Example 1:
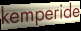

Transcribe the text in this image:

kemperide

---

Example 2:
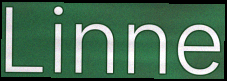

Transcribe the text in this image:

Linne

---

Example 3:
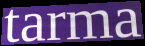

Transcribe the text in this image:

tarma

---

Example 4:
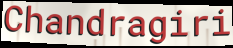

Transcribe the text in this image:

Chandragiri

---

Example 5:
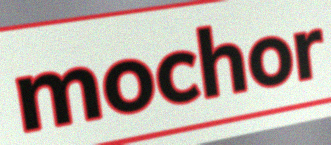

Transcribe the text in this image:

mochor